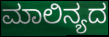
ಮಾಲಿನ್ಯದ